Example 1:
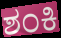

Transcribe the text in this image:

ಶಂಕಿ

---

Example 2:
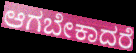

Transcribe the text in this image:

ಆಗಬೇಕಾದರೆ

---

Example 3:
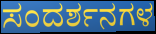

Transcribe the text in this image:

ಸಂದರ್ಶನಗಳ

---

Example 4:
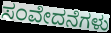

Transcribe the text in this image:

ಸಂವೇದನೆಗಳು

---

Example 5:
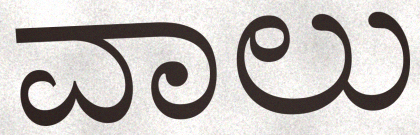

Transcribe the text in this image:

ವಾಲು